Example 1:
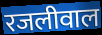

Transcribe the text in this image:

रजलीवाल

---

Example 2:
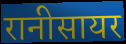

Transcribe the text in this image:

रानीसायर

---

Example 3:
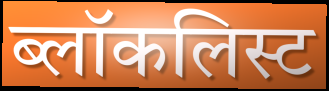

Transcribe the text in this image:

ब्लॉकलिस्ट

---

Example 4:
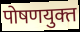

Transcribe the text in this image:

पोषणयुक्‍त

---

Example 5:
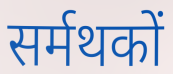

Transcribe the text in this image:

सर्मथकों